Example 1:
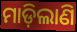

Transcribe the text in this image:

ମାଡ଼ିଲାଣି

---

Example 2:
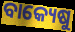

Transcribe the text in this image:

ବାକ୍ୟେଷୁ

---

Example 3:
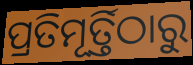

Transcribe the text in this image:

ପ୍ରତିମୂର୍ତ୍ତିଠାରୁ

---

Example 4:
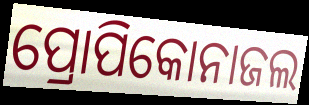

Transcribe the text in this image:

ପ୍ରୋପିକୋନାଜଲ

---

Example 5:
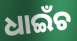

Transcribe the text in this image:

ଧାଇଁଚ